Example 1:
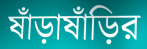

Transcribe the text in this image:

ষাঁড়াষাঁড়ির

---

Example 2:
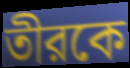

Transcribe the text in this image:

তীরকে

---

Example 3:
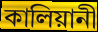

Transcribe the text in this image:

কালিয়ানী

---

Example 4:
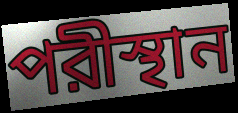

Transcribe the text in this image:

পরীস্থান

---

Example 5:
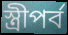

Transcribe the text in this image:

স্ত্রীপর্ব